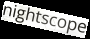
nightscope